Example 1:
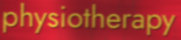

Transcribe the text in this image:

physiotherapy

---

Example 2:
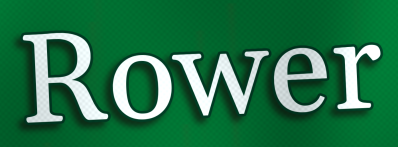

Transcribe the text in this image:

Rower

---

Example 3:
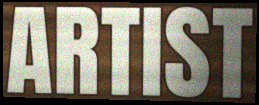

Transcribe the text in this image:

ARTIST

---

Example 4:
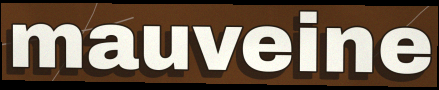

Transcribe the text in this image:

mauveine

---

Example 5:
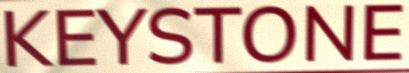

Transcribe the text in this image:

KEYSTONE